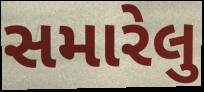
સમારેલુ